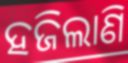
ହଜିଲାଣି